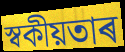
স্বকীয়তাৰ